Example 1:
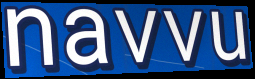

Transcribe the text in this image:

navvu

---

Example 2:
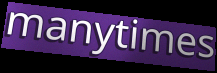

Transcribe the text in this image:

manytimes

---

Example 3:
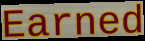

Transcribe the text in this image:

Earned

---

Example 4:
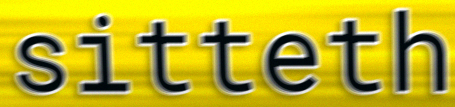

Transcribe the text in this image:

sitteth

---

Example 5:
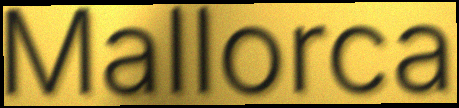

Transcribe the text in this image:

Mallorca